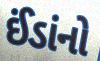
ઈંડાંનો